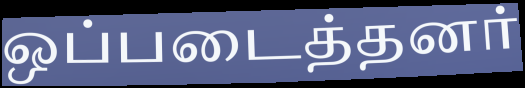
ஒப்படைத்தனர்